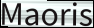
Maoris